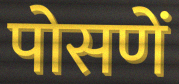
पोसणें